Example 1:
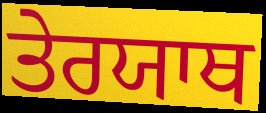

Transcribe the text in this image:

ਤੇਰਯਾਥ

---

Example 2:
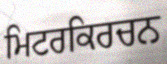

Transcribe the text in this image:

ਮਿਟਰਕਿਰਚਨ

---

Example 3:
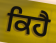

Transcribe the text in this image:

ਕਿਹੈ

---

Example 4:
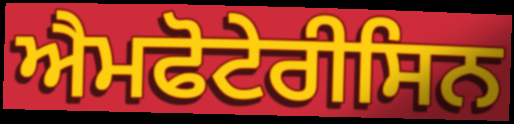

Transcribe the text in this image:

ਐਮਫੋਟੇਰੀਸਿਨ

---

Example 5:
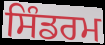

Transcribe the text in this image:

ਸਿੰਡਰਮ